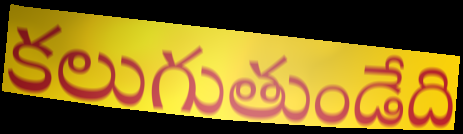
కలుగుతుండేది